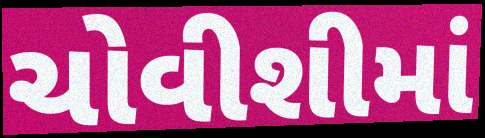
ચોવીશીમાં